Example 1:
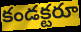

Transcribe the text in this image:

కండక్టరూ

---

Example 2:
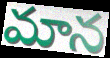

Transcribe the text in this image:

మాన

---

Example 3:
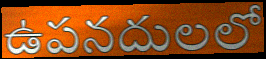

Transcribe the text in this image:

ఉపనదులలో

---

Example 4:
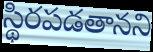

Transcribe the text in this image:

స్థిరపడతానని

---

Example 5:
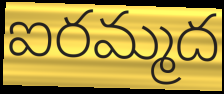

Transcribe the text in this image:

ఐరమ్మద